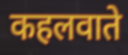
कहलवाते